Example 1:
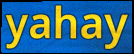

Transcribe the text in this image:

yahay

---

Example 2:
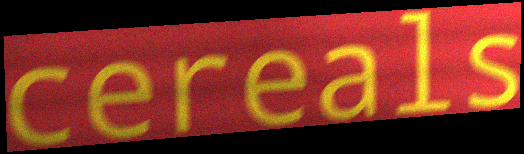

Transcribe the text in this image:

cereals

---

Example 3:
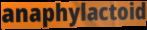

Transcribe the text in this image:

anaphylactoid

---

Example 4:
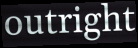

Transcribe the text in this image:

outright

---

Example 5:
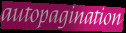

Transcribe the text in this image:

autopagination